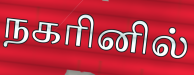
நகரினில்